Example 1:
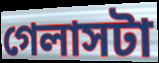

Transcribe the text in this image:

গেলাসটা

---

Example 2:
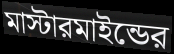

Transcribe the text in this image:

মাস্টারমাইন্ডের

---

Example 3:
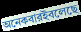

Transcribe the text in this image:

অনেকবারইবলেছে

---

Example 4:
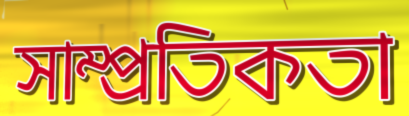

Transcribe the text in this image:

সাম্প্রতিকতা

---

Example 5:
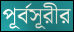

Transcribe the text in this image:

পূর্বসূরীর